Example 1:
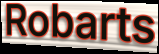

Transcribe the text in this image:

Robarts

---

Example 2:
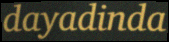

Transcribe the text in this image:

dayadinda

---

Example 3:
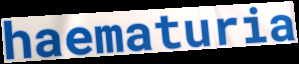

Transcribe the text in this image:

haematuria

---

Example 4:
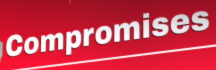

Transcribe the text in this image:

Compromises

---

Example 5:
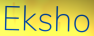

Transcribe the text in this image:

Eksho